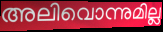
അലിവൊന്നുമില്ല